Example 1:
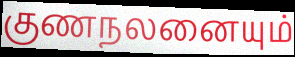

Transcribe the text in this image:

குணநலனையும்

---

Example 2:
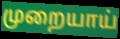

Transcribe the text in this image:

முறையாய்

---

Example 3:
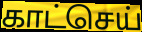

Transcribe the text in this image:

காட்செய்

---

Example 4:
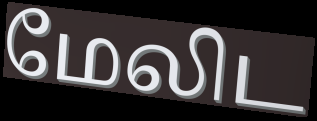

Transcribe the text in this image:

மேலிட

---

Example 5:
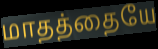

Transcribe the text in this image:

மாதத்தையே